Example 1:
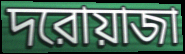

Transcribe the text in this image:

দরোয়াজা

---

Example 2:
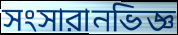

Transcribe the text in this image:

সংসারানভিজ্ঞ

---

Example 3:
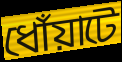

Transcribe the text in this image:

ধোঁয়াটে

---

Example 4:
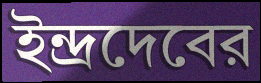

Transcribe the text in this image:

ইন্দ্রদেবের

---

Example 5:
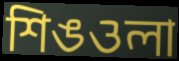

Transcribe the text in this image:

শিঙওলা